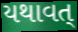
યથાવત્